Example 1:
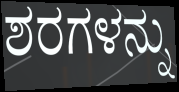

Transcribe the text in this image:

ಶರಗಳನ್ನು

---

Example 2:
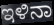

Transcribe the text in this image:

ಇಳಿನಾ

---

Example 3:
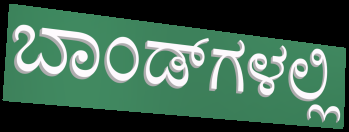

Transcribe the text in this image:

ಬಾಂಡ್‌ಗಳಲ್ಲಿ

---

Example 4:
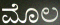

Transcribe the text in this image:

ಮೊಲ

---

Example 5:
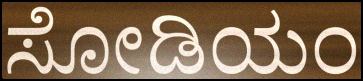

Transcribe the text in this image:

ಸೋಡಿಯಂ